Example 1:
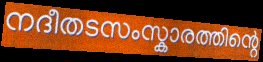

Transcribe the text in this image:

നദീതടസംസ്കാരത്തിന്റെ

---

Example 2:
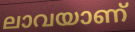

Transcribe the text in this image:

ലാവയാണ്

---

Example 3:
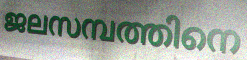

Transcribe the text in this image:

ജലസമ്പത്തിനെ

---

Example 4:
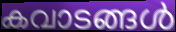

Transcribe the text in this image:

കവാടങ്ങൾ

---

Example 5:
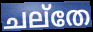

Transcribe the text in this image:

ചല്തേ